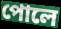
পোলে